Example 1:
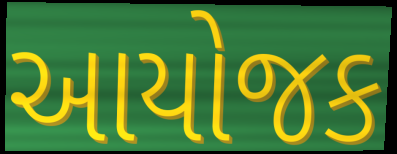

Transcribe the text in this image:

આયોજક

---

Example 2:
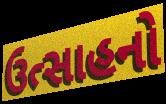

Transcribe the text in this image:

ઉત્સાહનો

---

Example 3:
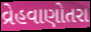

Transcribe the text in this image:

વ્રેહવાણોતરા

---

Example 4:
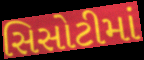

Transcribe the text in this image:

સિસોટીમાં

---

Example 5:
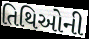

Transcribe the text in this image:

તિથિઓની